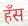
हँस